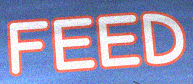
FEED